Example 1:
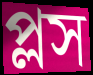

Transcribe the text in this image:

প্লস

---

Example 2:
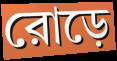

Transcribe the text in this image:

রোড়ে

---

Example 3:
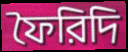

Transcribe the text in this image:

ফৈরিদি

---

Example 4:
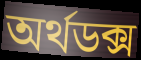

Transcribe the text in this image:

অর্থডক্স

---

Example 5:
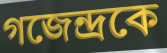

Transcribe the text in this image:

গজেন্দ্রকে